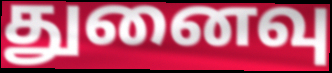
துனைவு